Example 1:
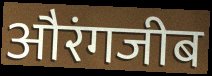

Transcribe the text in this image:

औरंगजीब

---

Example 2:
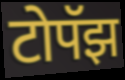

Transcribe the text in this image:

टोपॅझ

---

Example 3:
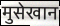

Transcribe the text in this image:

मुसेखान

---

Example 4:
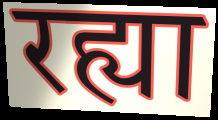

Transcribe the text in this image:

रह्या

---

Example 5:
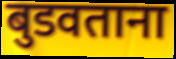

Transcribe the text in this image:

बुडवताना